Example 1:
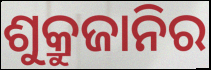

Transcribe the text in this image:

ଶୁକ୍ରୁଜାନିର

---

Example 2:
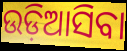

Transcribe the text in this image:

ଉଡ଼ିଆସିବା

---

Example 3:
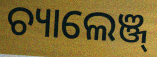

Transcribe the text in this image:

ଚ୍ୟାଲେଞ୍ଜ୍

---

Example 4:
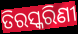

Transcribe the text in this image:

ତିରସ୍କରିଣୀ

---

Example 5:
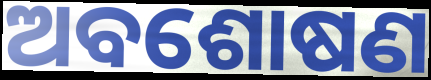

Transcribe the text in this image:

ଅବଶୋଷଣ